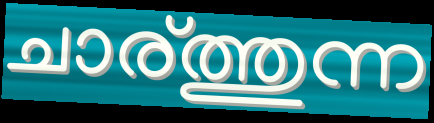
ചാര്ത്തുന്ന